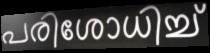
പരിശോധിച്ച്